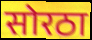
सोरठा